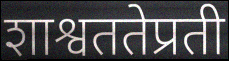
शाश्वततेप्रती